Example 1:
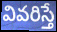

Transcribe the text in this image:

వివరిస్తే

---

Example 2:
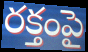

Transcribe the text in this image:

రక్తంపై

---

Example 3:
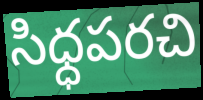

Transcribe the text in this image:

సిధ్ధపరచి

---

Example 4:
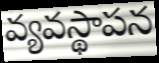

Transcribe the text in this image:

వ్యవస్థాపన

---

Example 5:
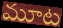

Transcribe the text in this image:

మూట